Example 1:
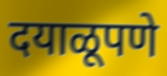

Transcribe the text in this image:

दयाळूपणे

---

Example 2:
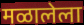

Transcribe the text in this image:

मळालेला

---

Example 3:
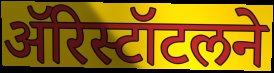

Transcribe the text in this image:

ॲरिस्टॉटलने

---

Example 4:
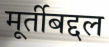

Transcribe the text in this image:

मूर्तीबद्दल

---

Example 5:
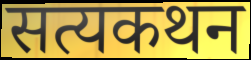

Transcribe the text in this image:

सत्यकथन